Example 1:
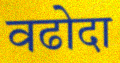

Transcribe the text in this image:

वढोदा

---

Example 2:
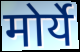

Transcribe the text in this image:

मोर्ये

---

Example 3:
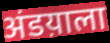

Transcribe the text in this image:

अंडय़ाला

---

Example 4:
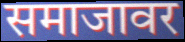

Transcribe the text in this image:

समाजावर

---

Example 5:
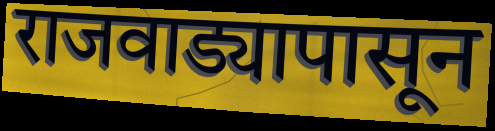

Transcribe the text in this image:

राजवाड्यापासून